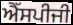
ਐੱਸਪੀਜੀ